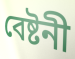
বেষ্টনী